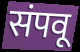
संपवू